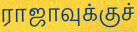
ராஜாவுக்குச்